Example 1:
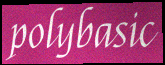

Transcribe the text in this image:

polybasic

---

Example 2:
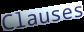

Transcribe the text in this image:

Clauses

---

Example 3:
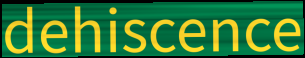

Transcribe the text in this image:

dehiscence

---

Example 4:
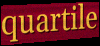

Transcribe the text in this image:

quartile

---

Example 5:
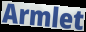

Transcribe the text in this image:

Armlet